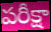
పరీక్షా